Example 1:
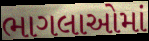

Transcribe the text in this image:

ભાગલાઓમાં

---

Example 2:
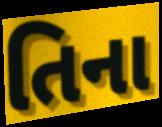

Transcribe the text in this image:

તિના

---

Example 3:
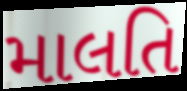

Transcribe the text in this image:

માલતિ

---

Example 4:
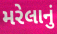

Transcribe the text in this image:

મરેલાનું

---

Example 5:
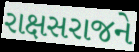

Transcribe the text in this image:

રાક્ષસરાજને